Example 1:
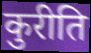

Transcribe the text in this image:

कुरीति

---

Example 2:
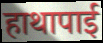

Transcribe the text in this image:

हाथापाई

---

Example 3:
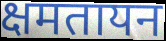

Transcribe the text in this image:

क्षमतायन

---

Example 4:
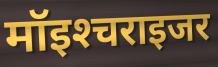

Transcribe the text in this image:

मॉइश्‍चराइजर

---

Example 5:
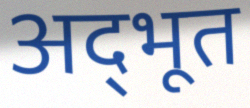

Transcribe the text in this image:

अद्भूत